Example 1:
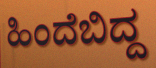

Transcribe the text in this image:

ಹಿಂದೆಬಿದ್ದ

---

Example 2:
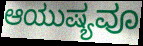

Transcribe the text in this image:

ಆಯುಷ್ಯವೂ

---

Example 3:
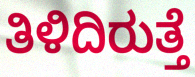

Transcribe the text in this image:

ತಿಳಿದಿರುತ್ತೆ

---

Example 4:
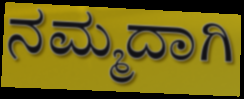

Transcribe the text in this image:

ನಮ್ಮದಾಗಿ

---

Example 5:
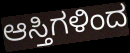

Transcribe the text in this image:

ಆಸ್ತಿಗಳಿಂದ